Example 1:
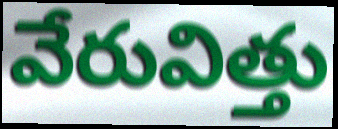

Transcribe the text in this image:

వేరువిత్తు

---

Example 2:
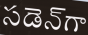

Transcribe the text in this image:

సడెన్‌గా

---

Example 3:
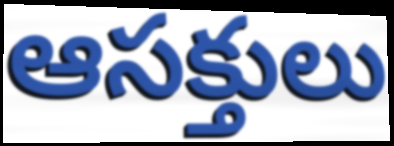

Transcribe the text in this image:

ఆసక్తులు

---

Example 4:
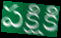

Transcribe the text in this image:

పక్షికి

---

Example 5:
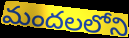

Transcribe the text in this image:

మందలలోని